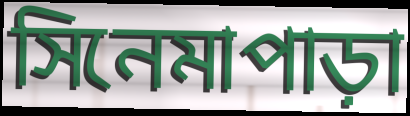
সিনেমাপাড়া